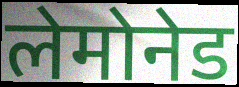
लेमोनेड